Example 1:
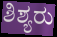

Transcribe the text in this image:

ಶಿಶ್ಯರು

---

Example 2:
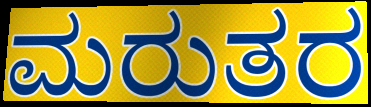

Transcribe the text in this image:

ಮರುತರ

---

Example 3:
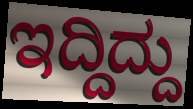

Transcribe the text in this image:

ಇದ್ದಿದ್ದು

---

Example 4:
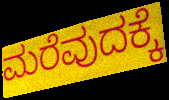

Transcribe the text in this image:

ಮರೆವುದಕ್ಕೆ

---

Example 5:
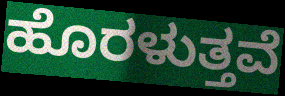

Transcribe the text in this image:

ಹೊರಳುತ್ತವೆ